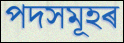
পদসমূহৰ